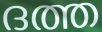
ദത്ത